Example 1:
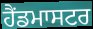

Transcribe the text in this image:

ਹੈਂਡਮਾਸਟਰ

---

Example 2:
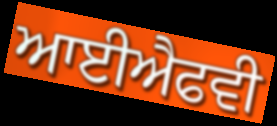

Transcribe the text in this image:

ਆਈਐਫਵੀ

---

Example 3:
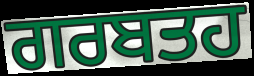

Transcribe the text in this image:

ਗਰਬਤਹ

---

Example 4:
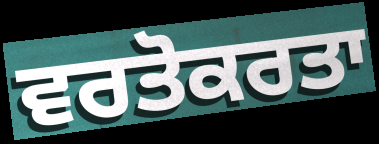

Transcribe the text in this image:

ਵਰਤੋਕਰਤਾ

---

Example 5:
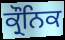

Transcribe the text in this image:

ਕ੍ਰੌਨਿਕ